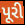
પૂરી